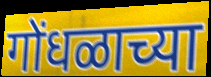
गोंधळाच्या